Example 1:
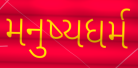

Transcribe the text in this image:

મનુષ્યધર્મ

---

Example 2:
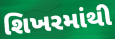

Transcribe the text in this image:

શિખરમાંથી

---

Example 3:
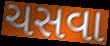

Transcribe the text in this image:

ચસવા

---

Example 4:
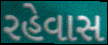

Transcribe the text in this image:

રહેવાસ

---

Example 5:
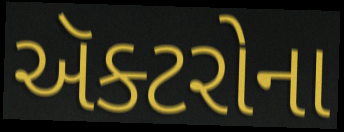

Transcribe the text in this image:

ઍક્ટરોના